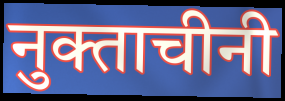
नुक्ताचीनी